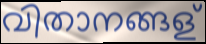
വിതാനങ്ങള്